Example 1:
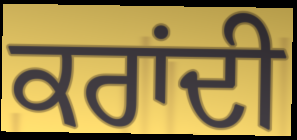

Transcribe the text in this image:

ਕਰਾਂਦੀ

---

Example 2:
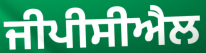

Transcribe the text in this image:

ਜੀਪੀਸੀਐਲ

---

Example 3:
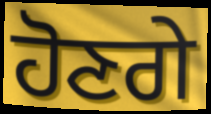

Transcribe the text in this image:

ਹੋਣਗੇ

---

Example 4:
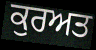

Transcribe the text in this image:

ਕੁਰਅਤ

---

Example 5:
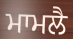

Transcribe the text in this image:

ਮਾਮਲੈ